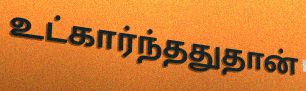
உட்கார்ந்ததுதான்